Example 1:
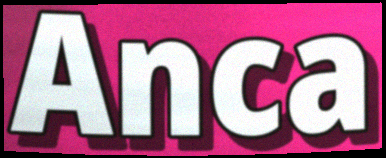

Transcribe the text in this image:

Anca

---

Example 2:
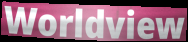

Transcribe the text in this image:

Worldview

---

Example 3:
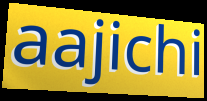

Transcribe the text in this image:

aajichi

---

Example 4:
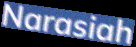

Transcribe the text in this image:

Narasiah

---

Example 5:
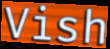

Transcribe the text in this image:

Vish